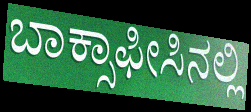
ಬಾಕ್ಸಾಫೀಸಿನಲ್ಲಿ